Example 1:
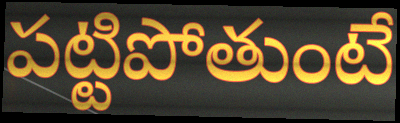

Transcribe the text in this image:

పట్టిపోతుంటే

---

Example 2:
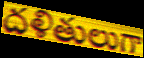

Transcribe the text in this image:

దళితులుగా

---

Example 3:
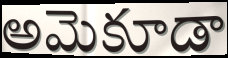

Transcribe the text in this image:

అమెకూడా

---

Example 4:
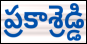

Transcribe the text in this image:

ప్రకాశ్రెడ్డి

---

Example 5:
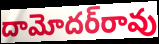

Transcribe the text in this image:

దామోదర్‌రావు